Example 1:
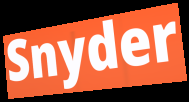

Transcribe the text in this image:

Snyder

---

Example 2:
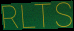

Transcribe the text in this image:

RLTS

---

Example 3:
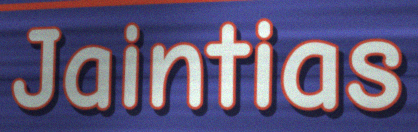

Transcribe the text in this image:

Jaintias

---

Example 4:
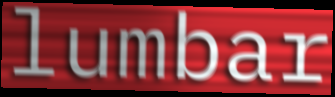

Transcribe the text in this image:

lumbar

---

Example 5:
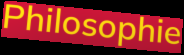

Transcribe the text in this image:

Philosophie